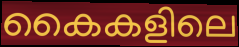
കൈകളിലെ